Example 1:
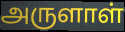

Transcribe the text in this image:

அருளாள்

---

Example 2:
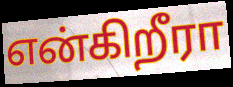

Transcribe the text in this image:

என்கிறீரா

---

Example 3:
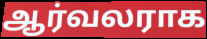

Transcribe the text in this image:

ஆர்வலராக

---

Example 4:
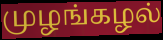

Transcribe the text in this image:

முழங்கழல்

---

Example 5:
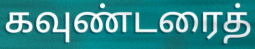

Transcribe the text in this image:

கவுண்டரைத்